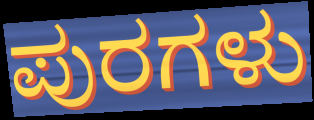
ಪುರಗಳು